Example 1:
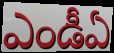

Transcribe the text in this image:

ఎండీఏ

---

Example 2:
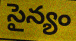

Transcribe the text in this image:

సైన్యం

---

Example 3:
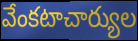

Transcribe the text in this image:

వేంకటాచార్యుల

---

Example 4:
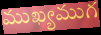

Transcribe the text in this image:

ముఖ్యముగ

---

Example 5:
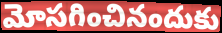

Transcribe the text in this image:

మోసగించినందుకు